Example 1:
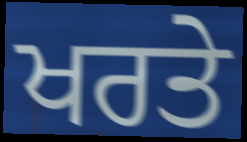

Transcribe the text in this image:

ਖਰਤੇ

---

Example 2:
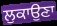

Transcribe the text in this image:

ਲੁਕਾਉਣਾ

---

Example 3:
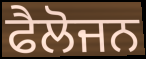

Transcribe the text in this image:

ਫੈਲੋਜਨ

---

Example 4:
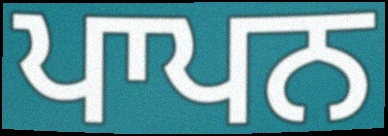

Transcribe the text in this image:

ਪਾਪਨ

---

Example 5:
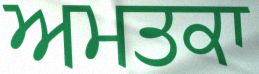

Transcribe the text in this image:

ਅਮਤਕਾ